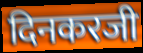
दिनकरजी